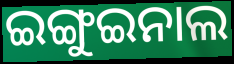
ଇଙ୍ଗୁଇନାଲ